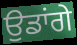
ਉਡਾਂਗੇ